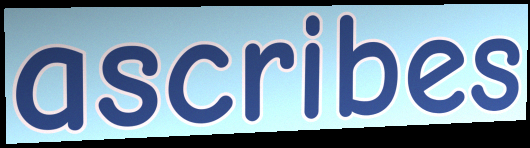
ascribes